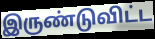
இருண்டுவிட்ட